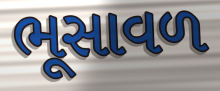
ભૂસાવળ